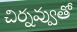
చిర్నవ్వుతో